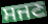
ਸਜਣ